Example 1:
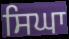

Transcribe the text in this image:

ਸਿਘਾ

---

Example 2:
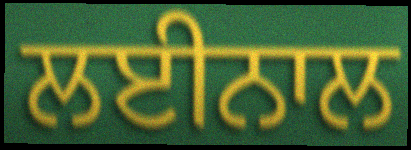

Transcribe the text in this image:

ਲਈਨਾਲ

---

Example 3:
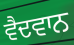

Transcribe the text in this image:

ਵੈਦਵਾਨ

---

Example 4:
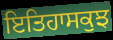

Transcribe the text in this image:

ਇਤਿਹਾਸਕੁਝ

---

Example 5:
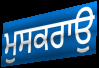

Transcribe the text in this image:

ਮੁਸਕਰਾਉ